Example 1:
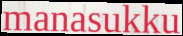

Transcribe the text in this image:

manasukku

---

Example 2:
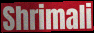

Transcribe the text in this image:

Shrimali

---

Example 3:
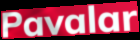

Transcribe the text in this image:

Pavalar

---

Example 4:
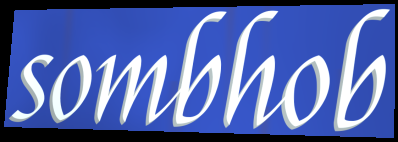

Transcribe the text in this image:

sombhob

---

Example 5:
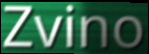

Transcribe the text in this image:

Zvino